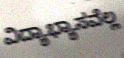
ವಿದ್ಯಾಭ್ಯಾಸವೆಲ್ಲ